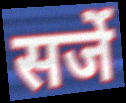
सर्जे